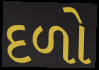
દળો